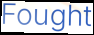
Fought